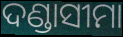
ଦଣ୍ଡାସୀମା